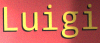
Luigi